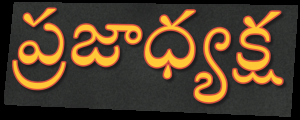
ప్రజాధ్యక్ష